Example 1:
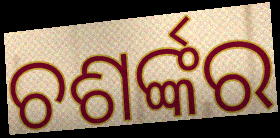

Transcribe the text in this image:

ଚଶର୍ଙ୍କର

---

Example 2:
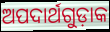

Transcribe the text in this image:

ଅପଦାର୍ଥଗୁଡ଼ାକ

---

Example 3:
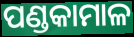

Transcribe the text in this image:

ପଣ୍ଡକାମାଳ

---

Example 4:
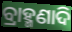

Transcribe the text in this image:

ବ୍ରାହ୍ମଣାଦି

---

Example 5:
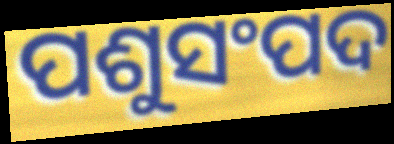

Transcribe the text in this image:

ପଶୁସଂପଦ